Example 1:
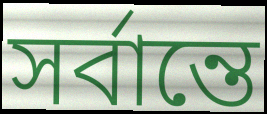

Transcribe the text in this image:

সর্বান্তে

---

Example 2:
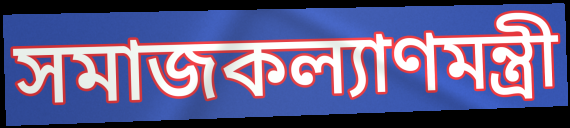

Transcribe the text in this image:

সমাজকল্যাণমন্ত্রী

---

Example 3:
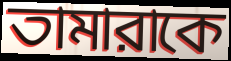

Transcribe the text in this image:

তামারাকে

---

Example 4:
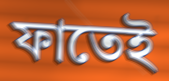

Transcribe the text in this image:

ফাতেই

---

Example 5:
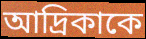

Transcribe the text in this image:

আদ্রিকাকে